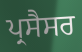
ਪ੍ਰਸੈਸਰ